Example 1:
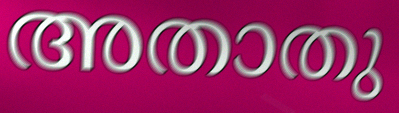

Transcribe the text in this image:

അതാതു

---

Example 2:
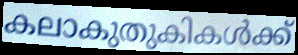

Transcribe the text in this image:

കലാകുതുകികൾക്ക്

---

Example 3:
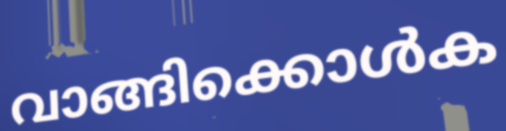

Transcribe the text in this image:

വാങ്ങിക്കൊൾക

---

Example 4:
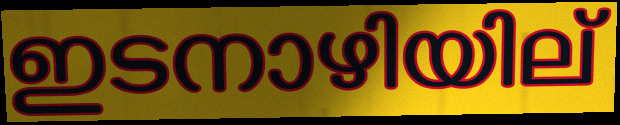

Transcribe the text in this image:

ഇടനാഴിയില്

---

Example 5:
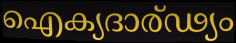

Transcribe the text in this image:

ഐക്യദാര്ഢ്യം